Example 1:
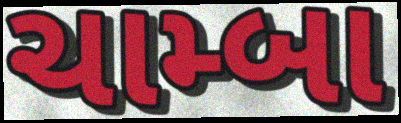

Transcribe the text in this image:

ચામ્બા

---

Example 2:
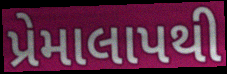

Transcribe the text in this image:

પ્રેમાલાપથી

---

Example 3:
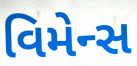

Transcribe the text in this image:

વિમેન્સ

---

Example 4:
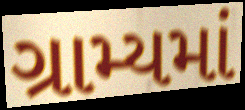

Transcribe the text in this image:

ગ્રામ્યમાં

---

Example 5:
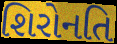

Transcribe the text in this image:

શિરોનતિ